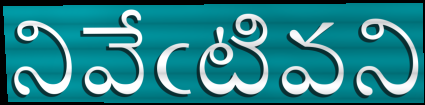
నివేఁటివని